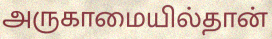
அருகாமையில்தான்